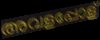
അവളപ്പോള്